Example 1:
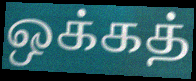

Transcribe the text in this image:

ஒக்கத்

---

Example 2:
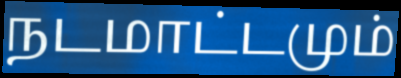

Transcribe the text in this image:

நடமாட்டமும்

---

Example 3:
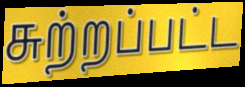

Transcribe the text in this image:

சுற்றப்பட்ட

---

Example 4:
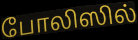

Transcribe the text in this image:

போலிஸில்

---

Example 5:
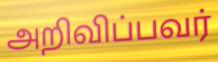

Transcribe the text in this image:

அறிவிப்பவர்